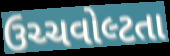
ઉચ્ચવોલ્ટતા